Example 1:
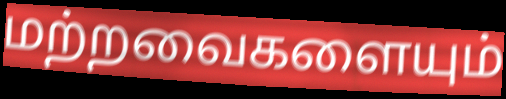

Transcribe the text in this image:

மற்றவைகளையும்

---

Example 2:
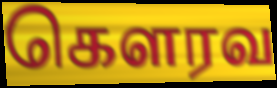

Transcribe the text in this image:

கெளரவ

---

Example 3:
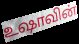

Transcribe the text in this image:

உஷாவின்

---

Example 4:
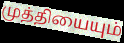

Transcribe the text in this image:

முத்தியையும்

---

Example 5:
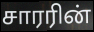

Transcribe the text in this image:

சாரரின்